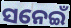
ସନେଇଁ